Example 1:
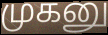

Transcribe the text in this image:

முகனு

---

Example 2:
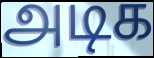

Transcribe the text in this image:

அடிக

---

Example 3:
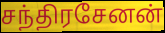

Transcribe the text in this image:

சந்திரசேனன்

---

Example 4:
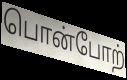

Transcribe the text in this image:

பொன்போற்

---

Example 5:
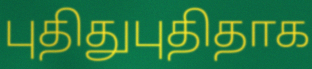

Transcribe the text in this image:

புதிதுபுதிதாக